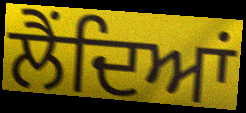
ਲੈਂਦਿਆਂ